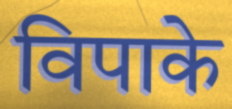
विपाके